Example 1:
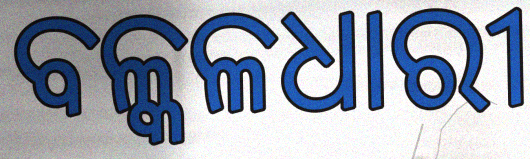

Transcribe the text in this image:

ବଳ୍କଳଧାରୀ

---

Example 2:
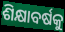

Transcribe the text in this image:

ଶିକ୍ଷାବର୍ଷକୁ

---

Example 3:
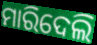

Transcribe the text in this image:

ମାରିଦେଲି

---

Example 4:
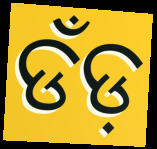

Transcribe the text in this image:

ଡଁଡ଼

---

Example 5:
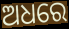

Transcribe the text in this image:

ଅଧରେ